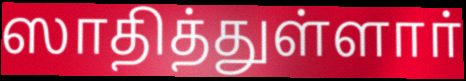
ஸாதித்துள்ளார்